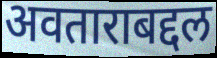
अवताराबद्दल